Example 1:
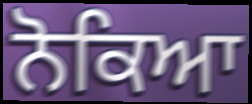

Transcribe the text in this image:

ਨੋਕਿਆ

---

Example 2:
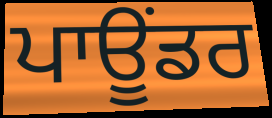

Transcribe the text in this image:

ਪਾਊਂਡਰ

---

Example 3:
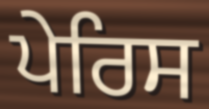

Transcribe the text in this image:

ਪੇਰਿਸ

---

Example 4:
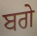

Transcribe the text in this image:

ਬਗੇ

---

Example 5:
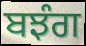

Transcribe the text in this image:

ਬਝੰਗ